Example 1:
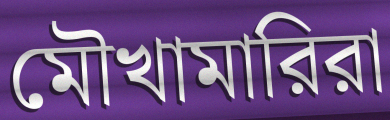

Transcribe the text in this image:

মৌখামারিরা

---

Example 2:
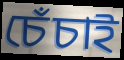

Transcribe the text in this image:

চেঁচাই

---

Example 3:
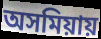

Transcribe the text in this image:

অসমিয়ায়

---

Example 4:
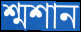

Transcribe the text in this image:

শ্মশান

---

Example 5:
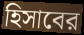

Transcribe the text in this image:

হিসাবের